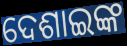
ଦେଶାଇଙ୍କ